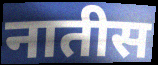
नातीस